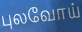
புலவோய்